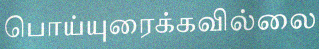
பொய்யுரைக்கவில்லை